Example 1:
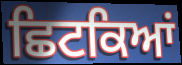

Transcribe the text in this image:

ਛਿਟਕਿਆਂ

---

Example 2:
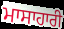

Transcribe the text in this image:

ਮਾਸਾਹਾਰੀ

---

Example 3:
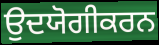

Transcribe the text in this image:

ਉਦਯੋਗੀਕਰਨ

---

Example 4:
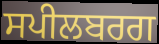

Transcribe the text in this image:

ਸਪੀਲਬਰਗ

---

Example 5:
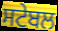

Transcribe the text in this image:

ਸਟੇਬਲ